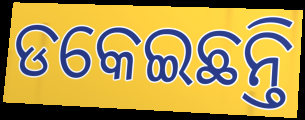
ଡକେଇଛନ୍ତି